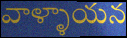
వాళ్ళాయన